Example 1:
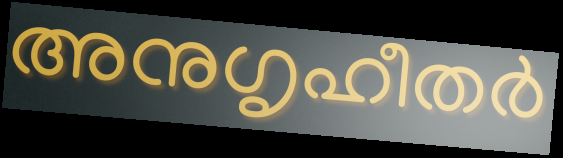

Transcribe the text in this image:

അനുഗൃഹീതർ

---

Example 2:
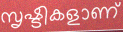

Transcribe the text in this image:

സൃഷ്ടികളാണ്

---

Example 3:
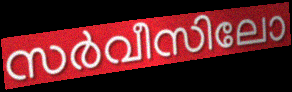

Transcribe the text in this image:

സർവീസിലോ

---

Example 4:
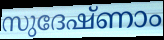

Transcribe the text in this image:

സുദേഷ്ണാം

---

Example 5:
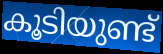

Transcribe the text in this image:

കൂടിയുണ്ട്